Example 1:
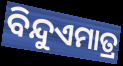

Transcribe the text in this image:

ବିନ୍ଦୁଏମାତ୍ର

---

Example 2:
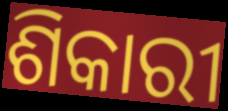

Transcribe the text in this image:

ଶିକାରୀ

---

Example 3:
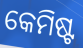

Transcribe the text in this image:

କେମିଷ୍ଟ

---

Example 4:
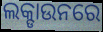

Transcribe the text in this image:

ଲକ୍ଡାଉନରେ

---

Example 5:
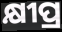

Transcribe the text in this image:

କ୍ଷୀପ୍ର